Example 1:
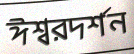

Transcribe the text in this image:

ঈশ্বরদর্শন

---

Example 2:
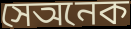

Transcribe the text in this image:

সেঅনেক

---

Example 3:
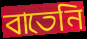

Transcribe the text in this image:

বাতেনি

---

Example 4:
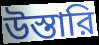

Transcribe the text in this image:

উস্তারি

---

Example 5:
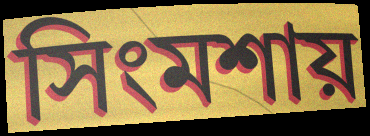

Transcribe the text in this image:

সিংমশায়